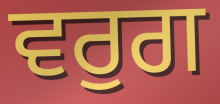
ਵਰੁਗ